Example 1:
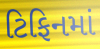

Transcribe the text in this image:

ટિફિનમાં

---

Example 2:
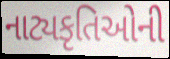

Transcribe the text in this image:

નાટ્યકૃતિઓની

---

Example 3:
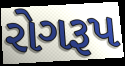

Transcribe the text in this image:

રોગરૂપ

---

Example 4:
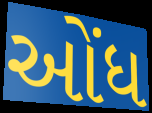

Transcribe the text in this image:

ઓંધ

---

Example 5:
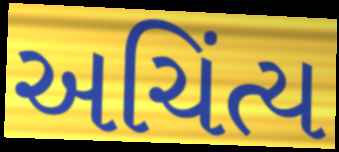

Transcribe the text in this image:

અચિંત્ય